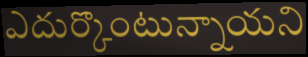
ఎదుర్కొంటున్నాయని